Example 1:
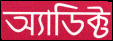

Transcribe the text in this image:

অ্যাডিক্ট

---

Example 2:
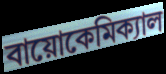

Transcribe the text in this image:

বায়োকেমিক্যাল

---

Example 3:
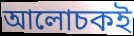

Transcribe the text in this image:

আলোচকই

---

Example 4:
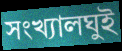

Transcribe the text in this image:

সংখ্যালঘুই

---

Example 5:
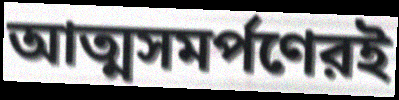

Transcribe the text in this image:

আত্মসমর্পণেরই